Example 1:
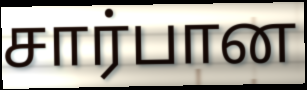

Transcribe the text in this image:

சார்பான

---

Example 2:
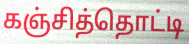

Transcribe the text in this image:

கஞ்சித்தொட்டி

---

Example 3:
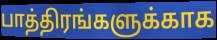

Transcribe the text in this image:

பாத்திரங்களுக்காக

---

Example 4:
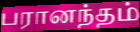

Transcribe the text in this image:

பரானந்தம்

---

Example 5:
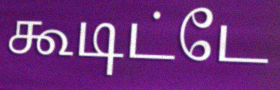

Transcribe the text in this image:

கூடிட்டே